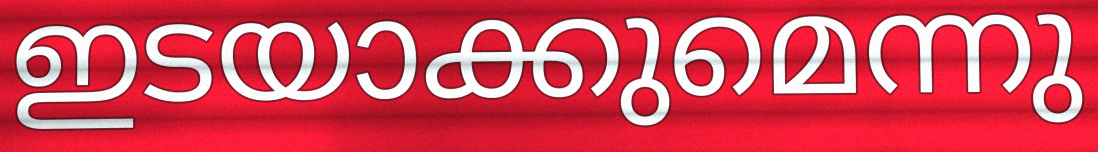
ഇടയാക്കുമെന്നു